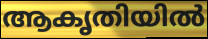
ആകൃതിയിൽ